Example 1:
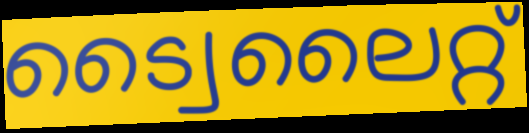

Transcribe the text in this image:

ട്വൈലൈറ്റ്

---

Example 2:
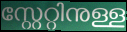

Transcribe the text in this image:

സ്റ്റേറ്റിനുള്ള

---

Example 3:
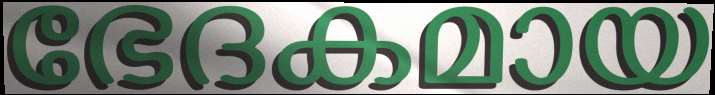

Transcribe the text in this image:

ഭേദകമായ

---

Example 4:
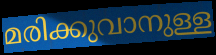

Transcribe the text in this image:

മരിക്കുവാനുള്ള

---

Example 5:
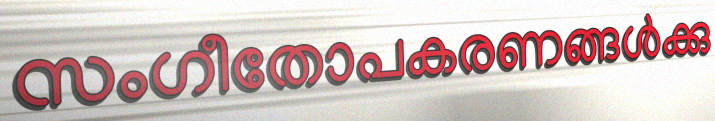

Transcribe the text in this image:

സംഗീതോപകരണങ്ങൾക്കു